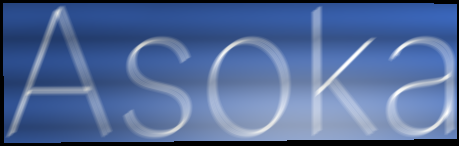
Asoka